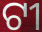
ଟୀ